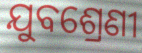
ଯୁବଶ୍ରେଣୀ